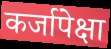
कर्जापेक्षा